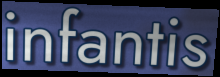
infantis